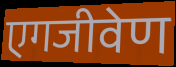
एगजीवेण